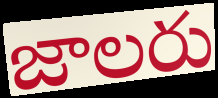
జాలరు